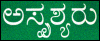
ಅಸ್ಪೃಶ್ಯರು